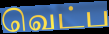
வெட்ப